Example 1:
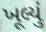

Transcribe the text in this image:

ખૂલ્યું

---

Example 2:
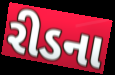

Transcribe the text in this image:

રીડના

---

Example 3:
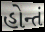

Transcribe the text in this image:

હોન્તં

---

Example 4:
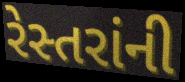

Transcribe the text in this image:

રેસ્તરાંની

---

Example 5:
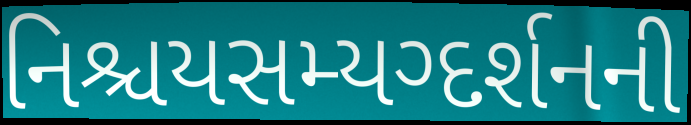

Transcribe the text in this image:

નિશ્ચયસમ્યગ્દર્શનની